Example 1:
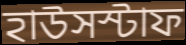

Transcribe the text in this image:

হাউসস্টাফ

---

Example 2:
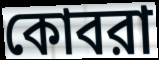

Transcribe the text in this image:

কোবরা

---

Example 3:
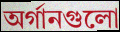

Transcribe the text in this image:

অর্গানগুলো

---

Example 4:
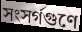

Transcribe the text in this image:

সংসর্গগুণে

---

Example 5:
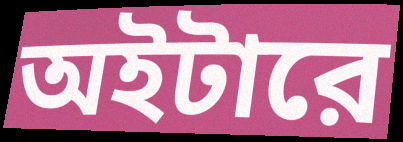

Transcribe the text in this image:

অইটারে